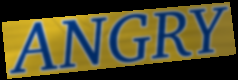
ANGRY